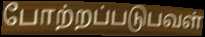
போற்றப்படுபவள்